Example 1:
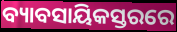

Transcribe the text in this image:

ବ୍ୟାବସାୟିକସ୍ତରରେ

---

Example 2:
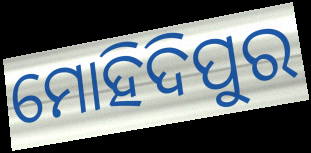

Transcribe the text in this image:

ମୋହିଦିପୁର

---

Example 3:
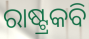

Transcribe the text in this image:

ରାଷ୍ଟ୍ରକବି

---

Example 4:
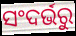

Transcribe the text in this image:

ସଂଦର୍ଭରୁ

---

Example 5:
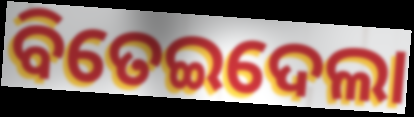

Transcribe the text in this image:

ବିତେଇଦେଲା